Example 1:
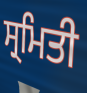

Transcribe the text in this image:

ਸ੍ਰਮਿਤੀ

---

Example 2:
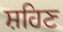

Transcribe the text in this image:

ਸ਼ਹਿਣ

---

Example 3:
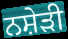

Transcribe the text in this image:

ਨਸ਼ੇੜੀ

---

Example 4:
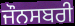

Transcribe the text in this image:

ਜੌਨਸਬਰੀ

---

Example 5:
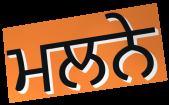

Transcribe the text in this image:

ਮਲਨੇ